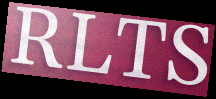
RLTS